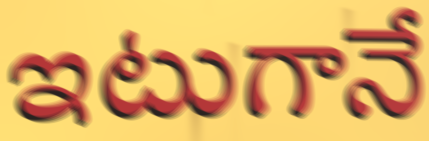
ఇటుగానే